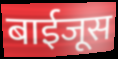
बाईजूस